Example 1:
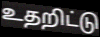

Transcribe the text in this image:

உதறிட்டு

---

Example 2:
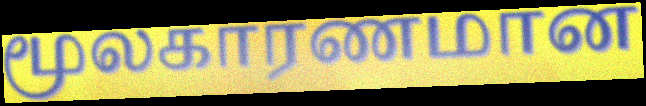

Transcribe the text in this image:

மூலகாரணமான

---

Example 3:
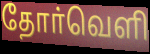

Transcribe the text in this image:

தோர்வெளி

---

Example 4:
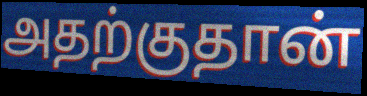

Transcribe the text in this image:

அதற்குதான்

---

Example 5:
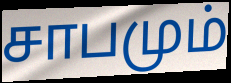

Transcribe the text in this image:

சாபமும்